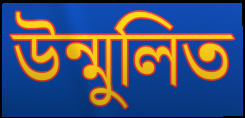
উন্মুলিত